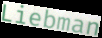
Liebman